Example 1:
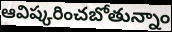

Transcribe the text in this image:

ఆవిష్కరించబోతున్నాం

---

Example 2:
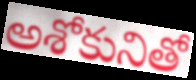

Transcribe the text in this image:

అశోకునితో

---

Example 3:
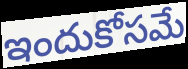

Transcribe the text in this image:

ఇందుకోసమే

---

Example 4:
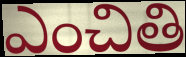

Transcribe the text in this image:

ఎంచితి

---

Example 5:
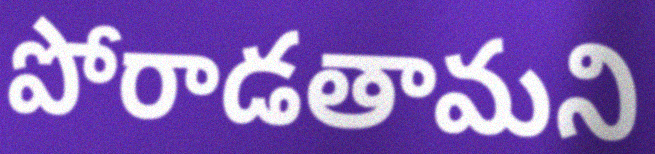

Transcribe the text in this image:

పోరాడతామని